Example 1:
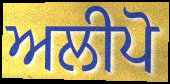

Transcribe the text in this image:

ਅਲੀਪੋ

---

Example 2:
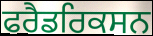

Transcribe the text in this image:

ਫਰੈਡਰਿਕਸਨ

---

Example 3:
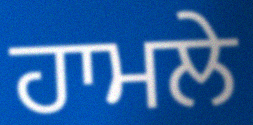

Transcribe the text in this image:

ਹਾਮਲੇ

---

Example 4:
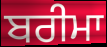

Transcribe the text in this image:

ਬਰੀਮਾ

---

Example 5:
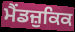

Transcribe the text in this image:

ਮੈਂਡਜ਼ੁਕਿਕ